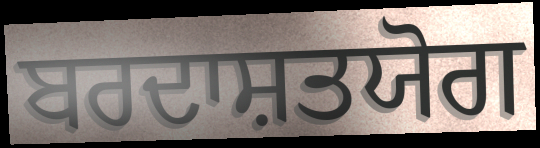
ਬਰਦਾਸ਼ਤਯੋਗ